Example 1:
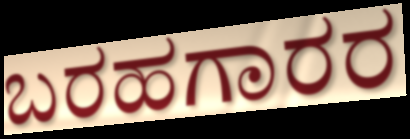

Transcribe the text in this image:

ಬರಹಗಾರರ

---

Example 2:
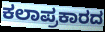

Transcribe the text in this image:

ಕಲಾಪ್ರಕಾರದ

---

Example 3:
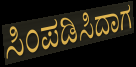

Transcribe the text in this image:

ಸಿಂಪಡಿಸಿದಾಗ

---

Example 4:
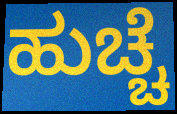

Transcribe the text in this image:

ಹುಚ್ಚೆ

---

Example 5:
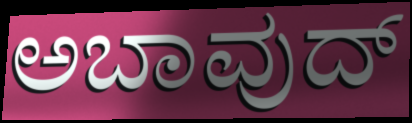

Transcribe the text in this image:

ಅಬಾವುದ್